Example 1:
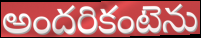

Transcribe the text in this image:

అందరికంటెను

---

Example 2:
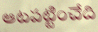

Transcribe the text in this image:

ఆటపట్టించేది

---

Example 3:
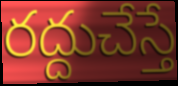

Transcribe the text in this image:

రద్దుచేస్తే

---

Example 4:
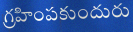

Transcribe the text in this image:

గ్రహింపకుందురు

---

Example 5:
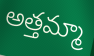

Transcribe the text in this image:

అత్తమ్మా